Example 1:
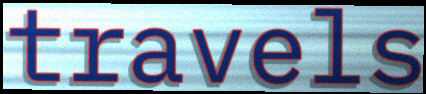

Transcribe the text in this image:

travels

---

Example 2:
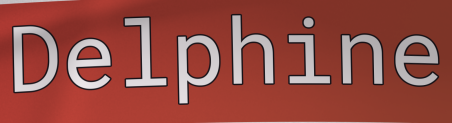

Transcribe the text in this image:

Delphine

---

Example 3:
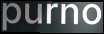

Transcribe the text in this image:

purno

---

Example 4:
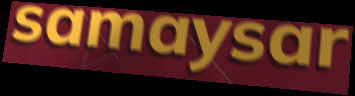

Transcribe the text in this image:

samaysar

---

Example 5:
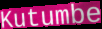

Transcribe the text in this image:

Kutumbe